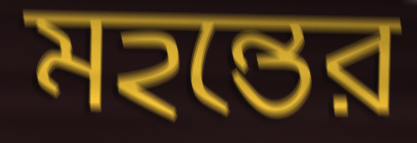
মহন্তের